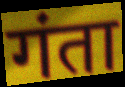
गंता